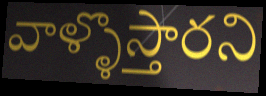
వాళ్ళొస్తారని